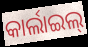
କାର୍ଲାଇଲ୍